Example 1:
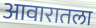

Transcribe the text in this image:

आवारातला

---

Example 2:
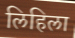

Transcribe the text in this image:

लिहिला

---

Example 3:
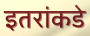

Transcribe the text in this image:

इतरांकडे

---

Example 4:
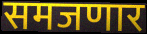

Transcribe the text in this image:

समजणार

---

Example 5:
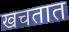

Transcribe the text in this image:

खचतात